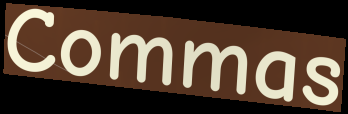
Commas